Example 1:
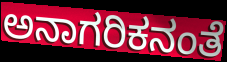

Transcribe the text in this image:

ಅನಾಗರಿಕನಂತೆ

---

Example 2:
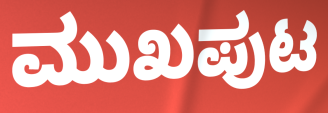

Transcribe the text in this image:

ಮುಖಪುಟ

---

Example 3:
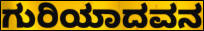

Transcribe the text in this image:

ಗುರಿಯಾದವನ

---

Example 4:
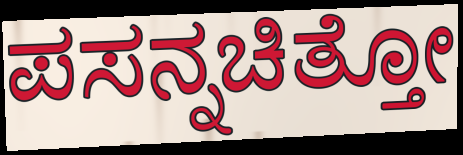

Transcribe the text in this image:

ಪಸನ್ನಚಿತ್ತೋ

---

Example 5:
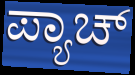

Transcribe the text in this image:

ಪ್ಯಾಚ್